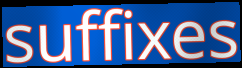
suffixes